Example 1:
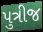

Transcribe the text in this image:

પુત્રીજ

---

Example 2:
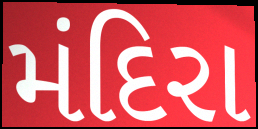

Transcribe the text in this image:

મંદિરા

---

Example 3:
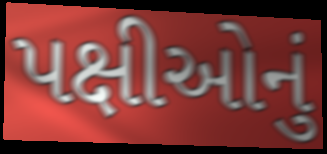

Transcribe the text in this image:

પક્ષીઓનું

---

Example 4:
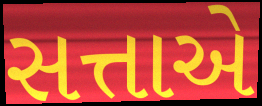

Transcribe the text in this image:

સત્તાએ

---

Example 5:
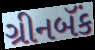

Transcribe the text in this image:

ગ્રીનબૅંક